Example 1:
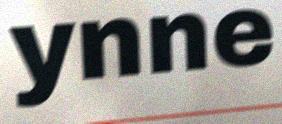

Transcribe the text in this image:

ynne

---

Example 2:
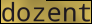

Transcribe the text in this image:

dozent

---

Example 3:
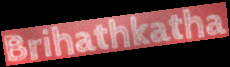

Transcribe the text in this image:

Brihathkatha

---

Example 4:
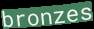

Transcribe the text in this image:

bronzes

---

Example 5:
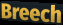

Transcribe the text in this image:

Breech